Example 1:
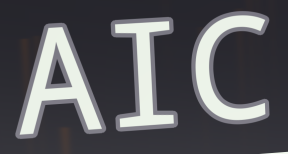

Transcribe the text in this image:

AIC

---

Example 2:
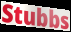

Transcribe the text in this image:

Stubbs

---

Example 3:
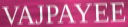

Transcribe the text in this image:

VAJPAYEE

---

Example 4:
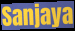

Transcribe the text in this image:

Sanjaya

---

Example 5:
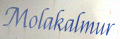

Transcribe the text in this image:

Molakalmur